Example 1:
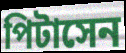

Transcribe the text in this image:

পিটাসেন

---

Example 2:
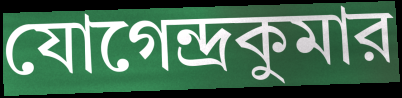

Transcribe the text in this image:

যোগেন্দ্রকুমার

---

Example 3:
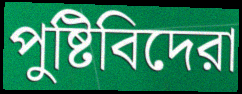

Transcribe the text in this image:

পুষ্টিবিদেরা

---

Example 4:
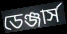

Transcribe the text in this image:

ডেঞ্জার্স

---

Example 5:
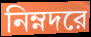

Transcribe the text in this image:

নিম্নদরে